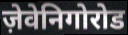
ज़ेवेनिगोरोड